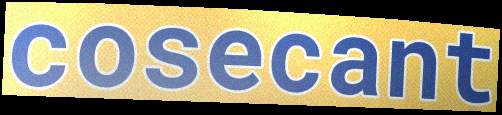
cosecant